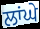
ਲਾਂਘੇ